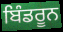
ਬਿੰਡਰੂਨ